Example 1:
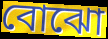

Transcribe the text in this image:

বোঝো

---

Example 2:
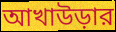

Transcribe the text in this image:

আখাউড়ার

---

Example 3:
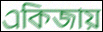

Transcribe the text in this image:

একিজায়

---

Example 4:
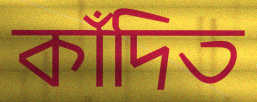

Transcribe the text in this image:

কাঁদিত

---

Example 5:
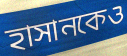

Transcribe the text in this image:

হাসানকেও